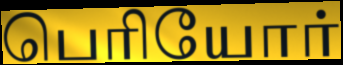
பெரியோர்